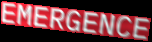
EMERGENCE